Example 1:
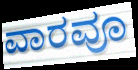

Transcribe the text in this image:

ವಾರವೂ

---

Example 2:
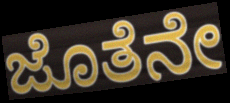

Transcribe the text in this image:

ಜೊತೆನೇ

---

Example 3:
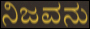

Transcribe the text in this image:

ನಿಜವನು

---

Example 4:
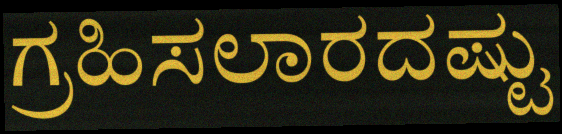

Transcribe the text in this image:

ಗ್ರಹಿಸಲಾರದಷ್ಟು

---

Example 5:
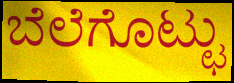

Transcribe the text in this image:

ಬೆಲೆಗೊಟ್ಟು